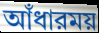
আঁধারময়